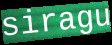
siragu